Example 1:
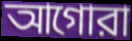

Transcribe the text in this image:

আগোরা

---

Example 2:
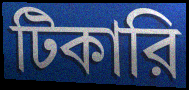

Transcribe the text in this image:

টিকারি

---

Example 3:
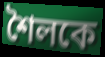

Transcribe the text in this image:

শৈলকে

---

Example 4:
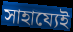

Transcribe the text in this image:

সাহায্যেই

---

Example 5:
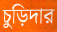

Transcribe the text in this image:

চুড়িদার